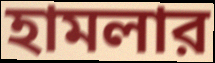
হামলার